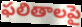
ఫలితాలపై